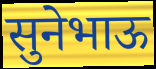
सुनेभाऊ